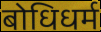
बोधिधर्म